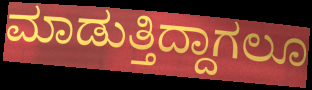
ಮಾಡುತ್ತಿದ್ದಾಗಲೂ